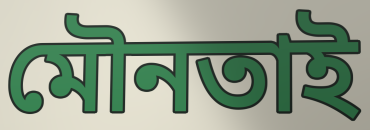
মৌনতাই